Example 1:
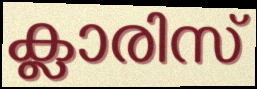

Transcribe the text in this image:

ക്ലാരിസ്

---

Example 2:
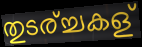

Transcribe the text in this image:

തുടര്ച്ചകള്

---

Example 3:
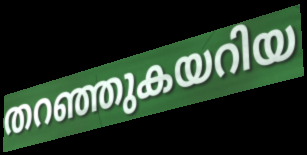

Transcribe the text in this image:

തറഞ്ഞുകയറിയ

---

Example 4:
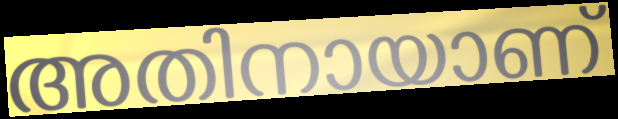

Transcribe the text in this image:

അതിനായാണ്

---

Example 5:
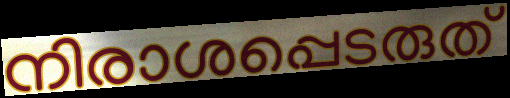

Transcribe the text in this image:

നിരാശപ്പെടരുത്